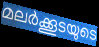
മലർക്കൂടയുടെ